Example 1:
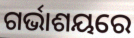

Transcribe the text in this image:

ଗର୍ଭାଶୟରେ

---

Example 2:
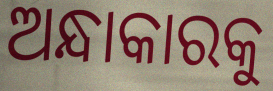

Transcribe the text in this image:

ଅନ୍ଧାକାରକୁ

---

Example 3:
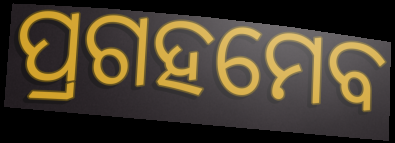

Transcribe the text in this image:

ପ୍ରଗହମେବ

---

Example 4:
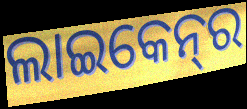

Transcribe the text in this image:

ଲାଇକେନ୍‌ର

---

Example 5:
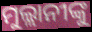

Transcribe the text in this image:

ମୁଲ୍ଲାନୀଙ୍କୁ